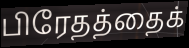
பிரேதத்தைக்